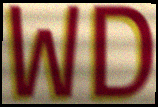
WD